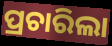
ପ୍ରଚାରିଲା